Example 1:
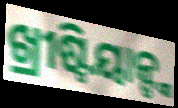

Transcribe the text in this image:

ଖ୍ରୀଷ୍ଟିୟାନ୍ଙ୍କ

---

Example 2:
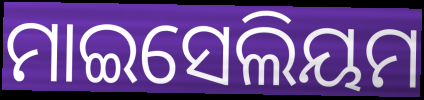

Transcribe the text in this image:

ମାଇସେଲିୟମ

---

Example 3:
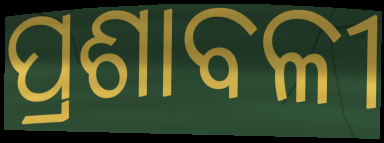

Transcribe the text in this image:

ପ୍ରଶାବଳୀ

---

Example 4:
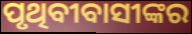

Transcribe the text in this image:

ପୃଥିବୀବାସୀଙ୍କର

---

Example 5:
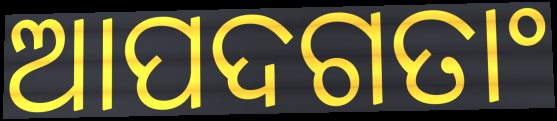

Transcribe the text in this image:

ଆପଦଗତାଂ